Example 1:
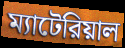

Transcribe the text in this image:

ম্যাটেরিয়াল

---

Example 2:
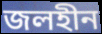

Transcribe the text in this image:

জলহীন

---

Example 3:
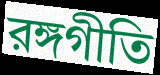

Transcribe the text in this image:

রঙ্গগীতি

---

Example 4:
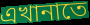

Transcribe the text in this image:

এখানাতে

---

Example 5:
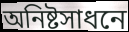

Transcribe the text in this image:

অনিষ্টসাধনে